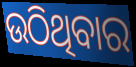
ଉଠିଥିବାର